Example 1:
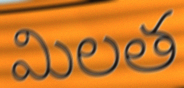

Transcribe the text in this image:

మిలత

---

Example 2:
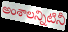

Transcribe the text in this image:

అంశాలన్నిటినీ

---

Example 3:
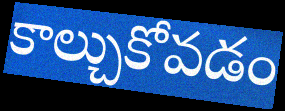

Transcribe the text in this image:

కాల్చుకోవడం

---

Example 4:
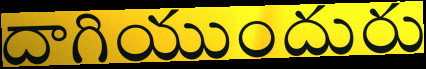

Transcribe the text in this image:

దాగియుందురు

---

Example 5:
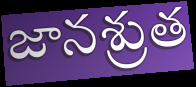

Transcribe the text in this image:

జానశ్రుత